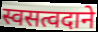
स्वसत्वदाने